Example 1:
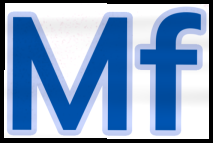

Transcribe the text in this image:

Mf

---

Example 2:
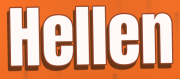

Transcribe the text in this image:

Hellen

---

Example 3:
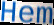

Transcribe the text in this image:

Hem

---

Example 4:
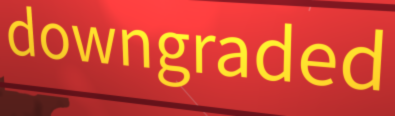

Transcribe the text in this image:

downgraded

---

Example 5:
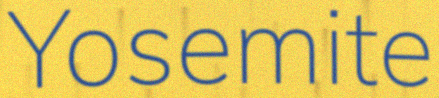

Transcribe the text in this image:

Yosemite